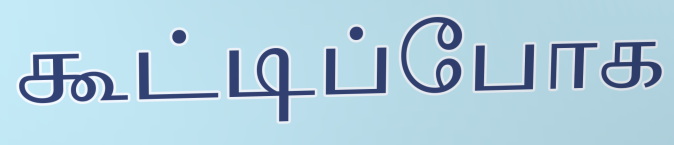
கூட்டிப்போக